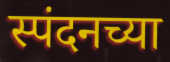
स्पंदनच्या